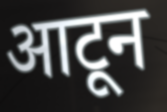
आटून